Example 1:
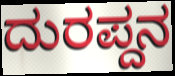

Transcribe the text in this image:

ದುರಪ್ದನ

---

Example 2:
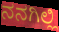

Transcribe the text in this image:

ನನಗಿಲ್ಲಿ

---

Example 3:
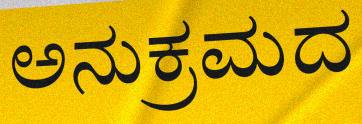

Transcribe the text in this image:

ಅನುಕ್ರಮದ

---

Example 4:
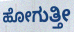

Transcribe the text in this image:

ಹೋಗುತ್ತೀ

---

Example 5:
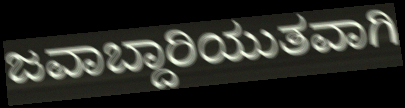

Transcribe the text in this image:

ಜವಾಬ್ದಾರಿಯುತವಾಗಿ